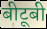
बीटूबी